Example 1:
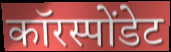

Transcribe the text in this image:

कॉरस्पोंडेट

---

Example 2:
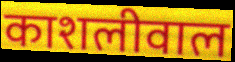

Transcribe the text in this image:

काशलीवाल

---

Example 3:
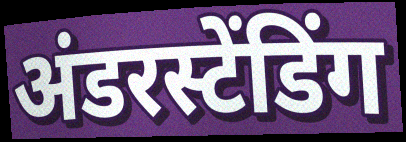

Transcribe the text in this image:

अंडरस्टेंडिंग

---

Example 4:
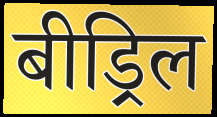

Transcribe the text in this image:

बीड्रिल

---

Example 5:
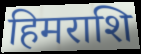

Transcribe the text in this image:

हिमराशि